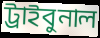
ট্রাইবুনাল